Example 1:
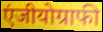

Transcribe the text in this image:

एंजीयोग्राफी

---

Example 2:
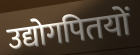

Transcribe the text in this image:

उद्योगपितयों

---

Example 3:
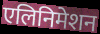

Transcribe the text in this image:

एलिनिमेशन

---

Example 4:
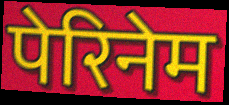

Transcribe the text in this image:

पेरिनेम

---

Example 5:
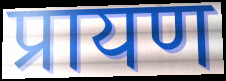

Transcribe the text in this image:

प्रायण